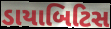
ડાયાબિટિસ